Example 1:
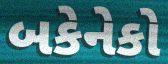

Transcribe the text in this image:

બકેનેકો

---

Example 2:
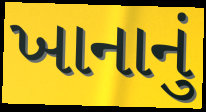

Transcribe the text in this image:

ખાનાનું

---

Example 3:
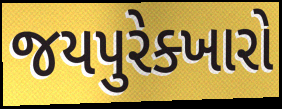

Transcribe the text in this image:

જયપુરેક્ખારો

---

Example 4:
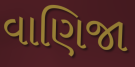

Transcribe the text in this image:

વાણિજા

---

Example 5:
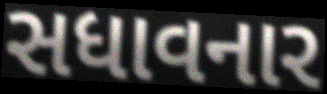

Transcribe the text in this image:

સધાવનાર